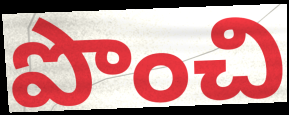
పొంచి